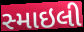
સ્માઇલી